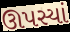
ઊપસ્યાં